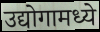
उद्योगामध्ये